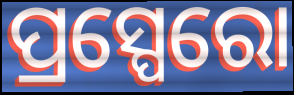
ପ୍ରସ୍ପେରୋ